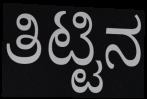
ತಿಟ್ಟಿನ